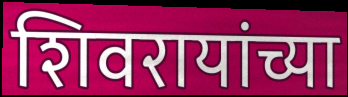
शिवरायांच्या